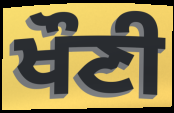
ਖੌਣੀ